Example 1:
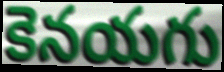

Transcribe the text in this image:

కెనయగు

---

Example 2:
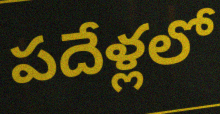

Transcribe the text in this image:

పదేళ్లలో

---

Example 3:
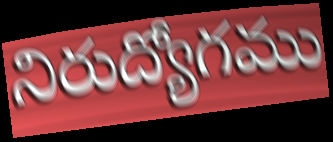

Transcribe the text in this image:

నిరుద్యోగము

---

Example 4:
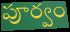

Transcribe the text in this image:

పూర్వం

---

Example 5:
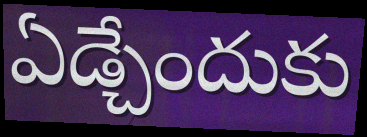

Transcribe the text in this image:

ఏడ్చేందుకు